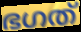
ഭഗത്